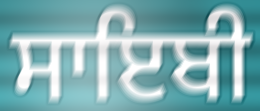
ਸਾਇਬੀ